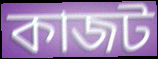
কাজট